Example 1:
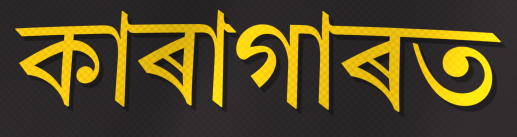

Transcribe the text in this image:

কাৰাগাৰত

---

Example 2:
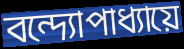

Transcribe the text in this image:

বন্দ্যোপাধ্যায়ে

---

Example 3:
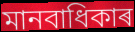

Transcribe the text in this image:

মানবাধিকাৰ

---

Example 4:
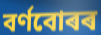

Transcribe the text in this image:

বৰ্ণবোৰৰ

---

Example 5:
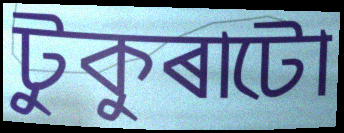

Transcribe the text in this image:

টুকুৰাটো